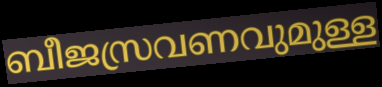
ബീജസ്രവണവുമുള്ള